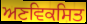
ਅਣਵਿਕਸਿਤ